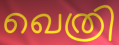
ഖെത്രി